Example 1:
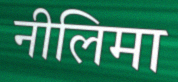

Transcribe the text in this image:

नीलिमा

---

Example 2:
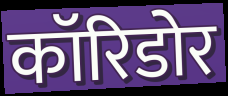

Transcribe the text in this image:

कॉरिडोर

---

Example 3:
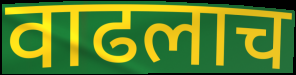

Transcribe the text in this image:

वाढलाच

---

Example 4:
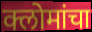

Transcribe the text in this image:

क्लोमांचा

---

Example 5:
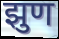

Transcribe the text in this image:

झुण